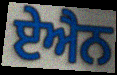
ਏਐਨ